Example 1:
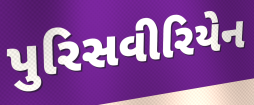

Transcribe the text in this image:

પુરિસવીરિયેન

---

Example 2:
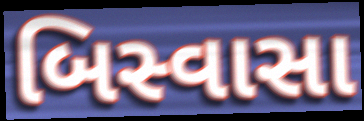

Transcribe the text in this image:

બિસ્વાસા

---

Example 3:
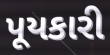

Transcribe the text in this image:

પૂયકારી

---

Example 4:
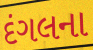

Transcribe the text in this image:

દંગલના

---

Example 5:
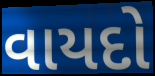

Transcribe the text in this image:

વાયદો